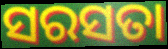
ସରସତା